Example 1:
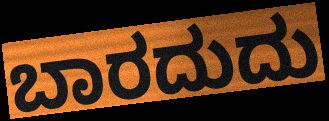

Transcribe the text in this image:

ಬಾರದುದು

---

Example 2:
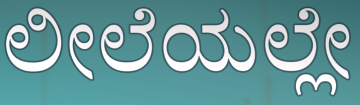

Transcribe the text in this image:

ಲೀಲೆಯಲ್ಲೇ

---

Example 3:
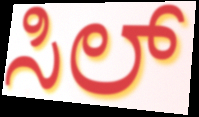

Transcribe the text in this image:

ಸಿಲ್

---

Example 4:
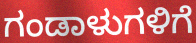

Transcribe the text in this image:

ಗಂಡಾಳುಗಳಿಗೆ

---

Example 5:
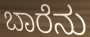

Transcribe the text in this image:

ಬಾರೆನು